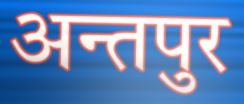
अन्तपुर